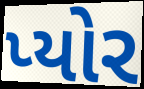
પ્યોર